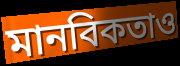
মানবিকতাও